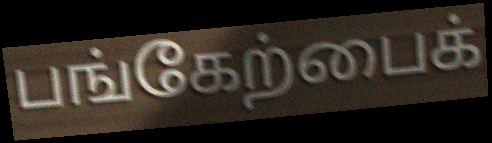
பங்கேற்பைக்